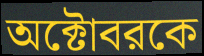
অক্টোবরকে